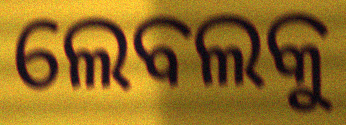
ଲେବଲକୁ